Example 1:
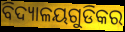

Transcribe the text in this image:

ବିଦ୍ୟାଳୟଗୁଡିକର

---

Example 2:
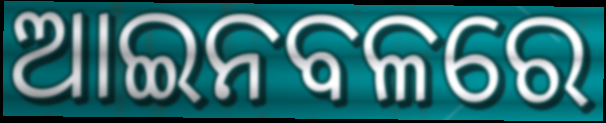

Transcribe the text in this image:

ଆଇନବଳରେ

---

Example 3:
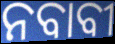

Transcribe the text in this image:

ନବାବୀ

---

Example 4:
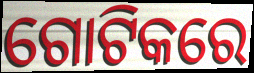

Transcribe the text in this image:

ଗୋଟିକରେ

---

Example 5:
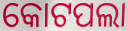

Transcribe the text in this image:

କୋଟପଲା